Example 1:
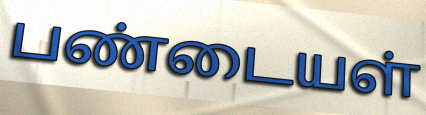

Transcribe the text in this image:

பண்டையள்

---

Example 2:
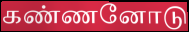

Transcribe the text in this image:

கண்ணனோடு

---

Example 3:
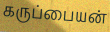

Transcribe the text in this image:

கருப்பையன்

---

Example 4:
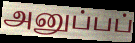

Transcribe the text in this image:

அனுப்பப்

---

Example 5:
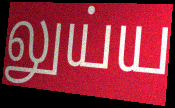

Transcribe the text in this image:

லுய்ய